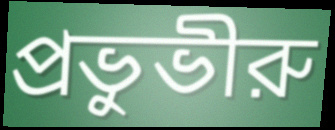
প্রভুভীরু